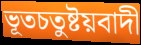
ভূতচতুষ্টয়বাদী